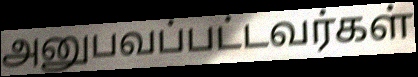
அனுபவப்பட்டவர்கள்